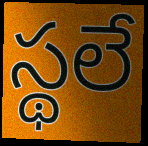
స్థలే